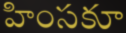
హింసకూ